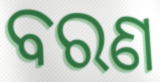
ବରଣ